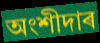
অংশীদাৰ